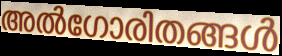
അൽഗോരിതങ്ങൾ